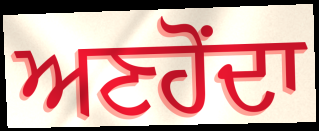
ਅਣਹੋਂਦਾ